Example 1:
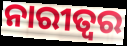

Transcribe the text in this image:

ନାରୀତ୍ୱର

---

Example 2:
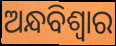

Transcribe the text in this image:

ଅନ୍ଧବିଶ୍ୱାର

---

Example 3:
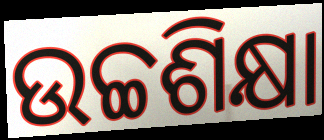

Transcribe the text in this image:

ଉଚ୍ଚଶିକ୍ଷା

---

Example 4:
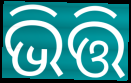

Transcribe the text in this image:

ଭିତ୍ତି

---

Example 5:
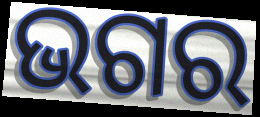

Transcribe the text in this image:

ଭଗର